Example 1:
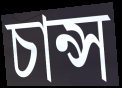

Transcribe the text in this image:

চান্স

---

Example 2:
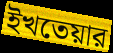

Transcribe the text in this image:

ইখতেয়ার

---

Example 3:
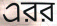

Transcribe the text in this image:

এরর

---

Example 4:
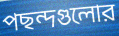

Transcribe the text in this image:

পছন্দগুলোর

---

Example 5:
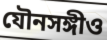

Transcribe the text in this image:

যৌনসঙ্গীও